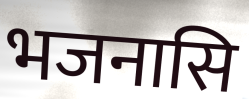
भजनासि